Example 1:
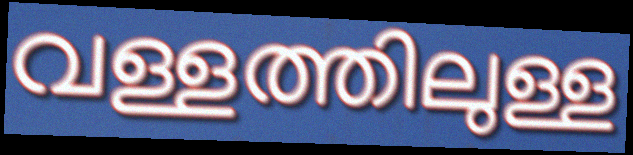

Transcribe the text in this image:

വള്ളത്തിലുള്ള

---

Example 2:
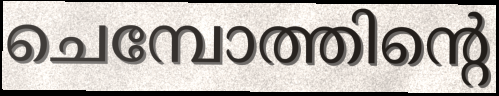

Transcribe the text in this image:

ചെമ്പോത്തിന്റെ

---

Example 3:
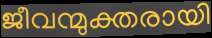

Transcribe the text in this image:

ജീവന്മുക്തരായി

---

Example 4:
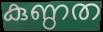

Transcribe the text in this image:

കുണ്ഠത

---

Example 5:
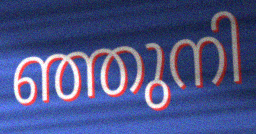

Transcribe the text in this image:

ഞ്ഞുനി